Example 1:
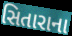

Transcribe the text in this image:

સિતારાના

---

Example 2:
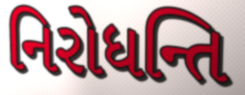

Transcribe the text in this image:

નિરોધન્તિ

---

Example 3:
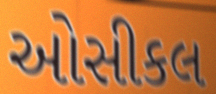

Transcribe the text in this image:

ઓસીકલ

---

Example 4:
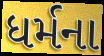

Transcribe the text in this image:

ધર્મના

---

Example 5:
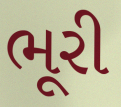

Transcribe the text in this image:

ભૂરી